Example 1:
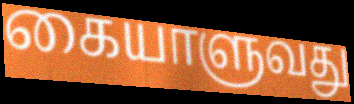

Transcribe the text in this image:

கையாளுவது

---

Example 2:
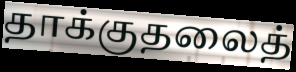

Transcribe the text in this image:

தாக்குதலைத்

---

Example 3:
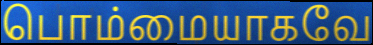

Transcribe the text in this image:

பொம்மையாகவே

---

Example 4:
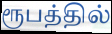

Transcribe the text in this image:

ரூபத்தில்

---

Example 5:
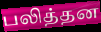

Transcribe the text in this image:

பலித்தன